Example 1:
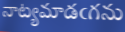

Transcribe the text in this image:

నాట్యమాడఁగను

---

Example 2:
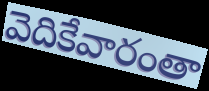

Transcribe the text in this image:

వెదికేవారంతా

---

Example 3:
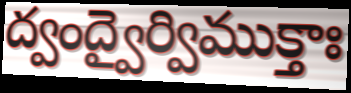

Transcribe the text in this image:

ద్వంద్వైర్విముక్తాః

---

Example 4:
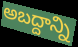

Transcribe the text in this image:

అబద్దాన్ని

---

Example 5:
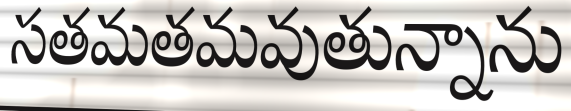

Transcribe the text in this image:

సతమతమవుతున్నాను